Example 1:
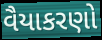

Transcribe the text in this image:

વૈયાકરણો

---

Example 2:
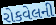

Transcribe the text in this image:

રોકવેલની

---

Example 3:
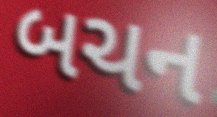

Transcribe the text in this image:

બચન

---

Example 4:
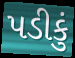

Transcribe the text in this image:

પડીકું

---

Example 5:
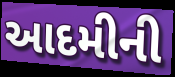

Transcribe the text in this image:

આદમીની